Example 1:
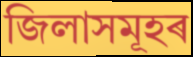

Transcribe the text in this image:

জিলাসমূহৰ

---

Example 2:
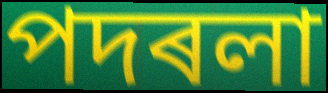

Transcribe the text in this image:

পদৰলা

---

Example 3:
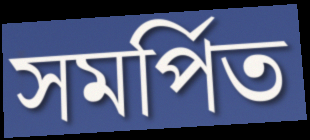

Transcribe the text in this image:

সমৰ্পিত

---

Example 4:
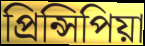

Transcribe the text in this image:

প্ৰিন্সিপিয়া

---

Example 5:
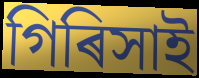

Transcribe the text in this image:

গিৰিসাই